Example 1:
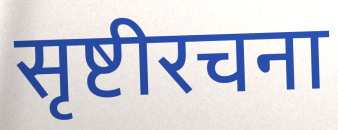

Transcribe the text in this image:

सृष्टीरचना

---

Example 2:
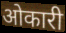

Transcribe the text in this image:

ओकारी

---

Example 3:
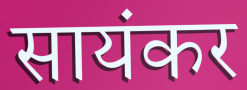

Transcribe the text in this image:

सायंकर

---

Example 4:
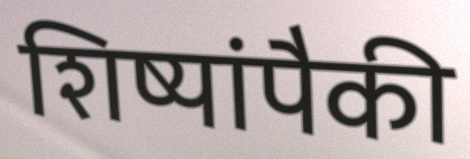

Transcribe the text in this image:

शिष्यांपैकी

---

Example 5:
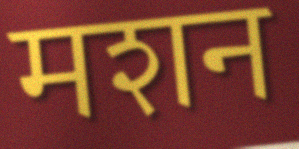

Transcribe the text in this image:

मशन